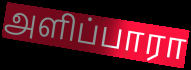
அளிப்பாரா